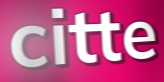
citte